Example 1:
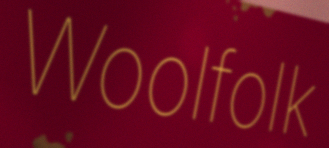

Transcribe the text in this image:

Woolfolk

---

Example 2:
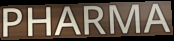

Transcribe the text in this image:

PHARMA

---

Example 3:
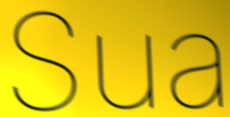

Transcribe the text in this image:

Sua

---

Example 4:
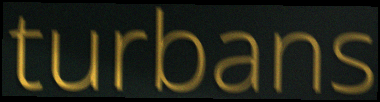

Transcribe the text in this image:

turbans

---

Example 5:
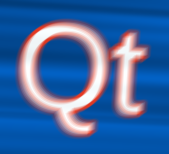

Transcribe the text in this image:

Qt